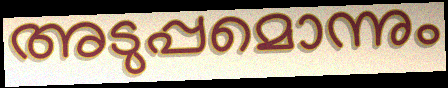
അടുപ്പമൊന്നും